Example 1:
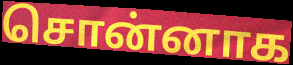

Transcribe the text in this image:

சொன்னாக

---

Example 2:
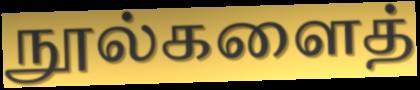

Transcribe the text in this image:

நூல்களைத்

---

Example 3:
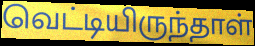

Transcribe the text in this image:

வெட்டியிருந்தாள்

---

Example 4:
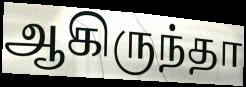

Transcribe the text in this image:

ஆகிருந்தா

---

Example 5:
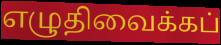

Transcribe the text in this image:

எழுதிவைக்கப்